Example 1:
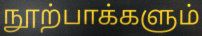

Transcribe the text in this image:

நூற்பாக்களும்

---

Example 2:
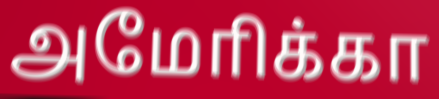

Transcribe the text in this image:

அமேரிக்கா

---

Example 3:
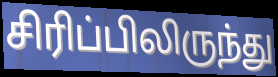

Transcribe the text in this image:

சிரிப்பிலிருந்து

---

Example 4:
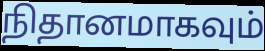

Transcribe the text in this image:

நிதானமாகவும்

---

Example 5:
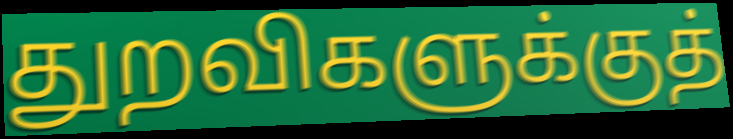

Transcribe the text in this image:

துறவிகளுக்குத்